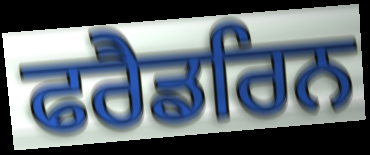
ਫਰੈਡਰਿਨ